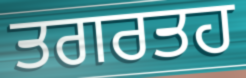
ਤਗਰਤਹ